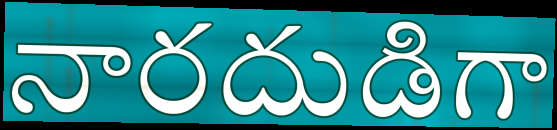
నారదుడిగా